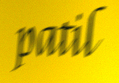
patil